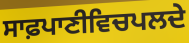
ਸਾਫ਼ਪਾਣੀਵਿਚਪਲਦੇ